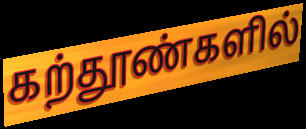
கற்தூண்களில்